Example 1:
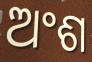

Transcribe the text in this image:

ଅଂଶ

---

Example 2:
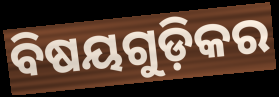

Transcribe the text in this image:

ବିଷୟଗୁଡ଼ିକର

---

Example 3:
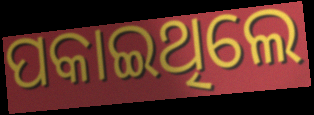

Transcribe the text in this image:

ପକାଇଥିଲେ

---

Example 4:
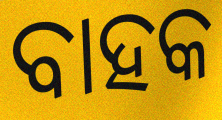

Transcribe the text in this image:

ବାହକ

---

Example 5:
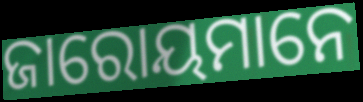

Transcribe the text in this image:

ଜାରୋୟମାନେ